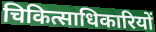
चिकित्साधिकारियों